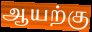
ஆயற்கு